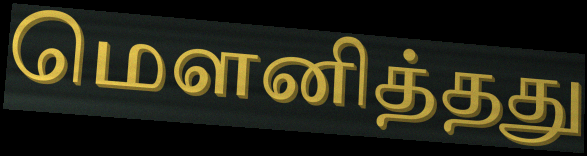
மௌனித்தது